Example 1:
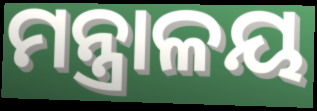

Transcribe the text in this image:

ମନ୍ତ୍ରାଳୟ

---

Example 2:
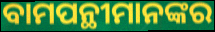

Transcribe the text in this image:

ବାମପନ୍ଥୀମାନଙ୍କର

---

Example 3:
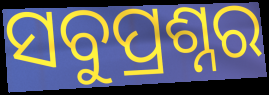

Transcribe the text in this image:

ସବୁପ୍ରଶ୍ନର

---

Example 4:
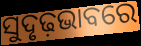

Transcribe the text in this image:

ସୁଦୃଢ଼ଭାବରେ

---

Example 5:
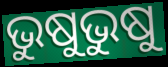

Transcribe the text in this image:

ଭୁଷୁଭୁଷୁ